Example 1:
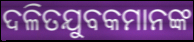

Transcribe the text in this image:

ଦଳିତଯୁବକମାନଙ୍କ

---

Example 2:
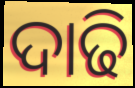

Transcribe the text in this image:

ଦାଢି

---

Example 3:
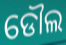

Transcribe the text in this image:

ଡୌଲ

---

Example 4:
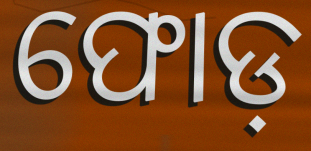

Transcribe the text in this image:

ଫୋଡ଼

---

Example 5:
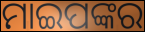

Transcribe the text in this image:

ମାଇପଙ୍କର